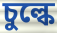
চুল্কে